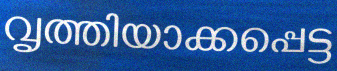
വൃത്തിയാക്കപ്പെട്ട